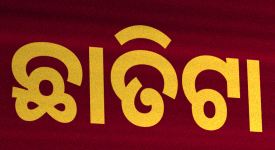
ଛାତିଟା